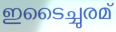
ഇടൈച്ചുരമ്